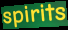
spirits